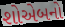
શોએબનો